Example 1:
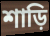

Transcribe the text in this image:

শাড়ি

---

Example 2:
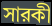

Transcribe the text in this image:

সারকী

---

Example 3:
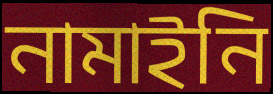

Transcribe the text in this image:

নামাইনি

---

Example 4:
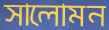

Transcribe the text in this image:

সালোমন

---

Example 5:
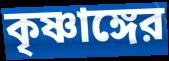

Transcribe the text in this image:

কৃষ্ণাঙ্গের